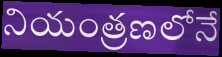
నియంత్రణలోనే